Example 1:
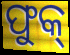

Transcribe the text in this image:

ଫୁକ୍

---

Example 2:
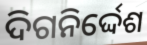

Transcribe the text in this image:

ଦିଗନିର୍ଦ୍ଦେଶ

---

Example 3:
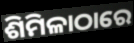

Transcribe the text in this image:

ଶିମିଳାଠାରେ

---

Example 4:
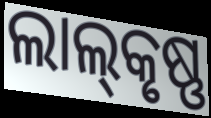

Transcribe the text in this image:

ଲାଲ୍‌କୃଷ୍ଣ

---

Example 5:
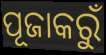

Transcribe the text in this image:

ପୂଜାକରୁଁ